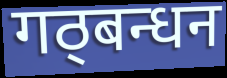
गठ्बन्धन